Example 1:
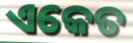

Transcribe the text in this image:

ଏକେତ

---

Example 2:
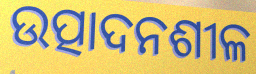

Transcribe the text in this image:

ଉତ୍ପାଦନଶୀଳ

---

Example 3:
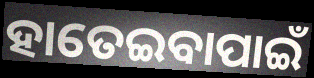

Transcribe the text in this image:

ହାତେଇବାପାଇଁ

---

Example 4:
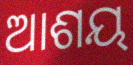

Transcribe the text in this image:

ଆଶୟ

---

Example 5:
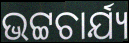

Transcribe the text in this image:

ଭଟ୍ଟଚାର୍ଯ୍ୟ